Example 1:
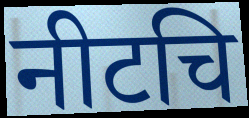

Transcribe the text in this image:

नीटचि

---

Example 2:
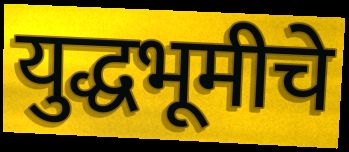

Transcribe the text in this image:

युद्धभूमीचे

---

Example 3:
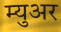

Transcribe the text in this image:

म्युअर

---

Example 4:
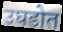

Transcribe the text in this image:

उघडोत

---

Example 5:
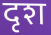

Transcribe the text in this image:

दृश